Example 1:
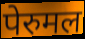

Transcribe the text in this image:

पेरुमल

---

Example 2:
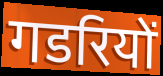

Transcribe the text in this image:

गडरियों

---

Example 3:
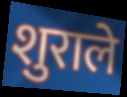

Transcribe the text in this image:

शुराले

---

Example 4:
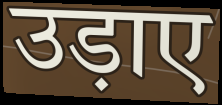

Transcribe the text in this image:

उड़ाए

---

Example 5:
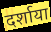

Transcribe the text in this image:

दर्शाया